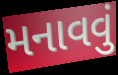
મનાવવું